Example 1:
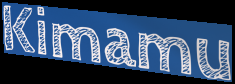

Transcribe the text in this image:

Kimamu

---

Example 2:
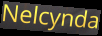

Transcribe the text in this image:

Nelcynda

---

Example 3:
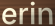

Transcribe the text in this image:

erin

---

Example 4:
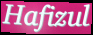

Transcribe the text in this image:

Hafizul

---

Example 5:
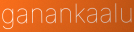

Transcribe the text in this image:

ganankaalu